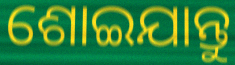
ଶୋଇଯାନ୍ତୁ